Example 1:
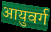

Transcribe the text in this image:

आयुवर्ग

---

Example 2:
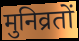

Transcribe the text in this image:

मुनिव्रतों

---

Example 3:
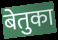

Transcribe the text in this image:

बेतुका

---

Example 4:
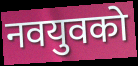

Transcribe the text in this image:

नवयुवको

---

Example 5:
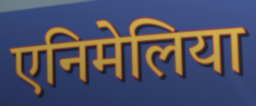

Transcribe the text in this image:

एनिमेलिया